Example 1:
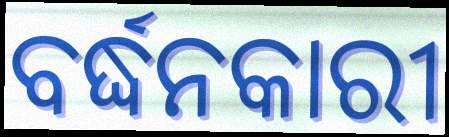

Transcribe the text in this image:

ବର୍ଦ୍ଧନକାରୀ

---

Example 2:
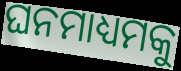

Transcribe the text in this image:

ଘନମାଧ୍ୟମକୁ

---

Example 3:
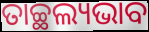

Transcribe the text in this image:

ତାଚ୍ଛଲ୍ୟଭାବ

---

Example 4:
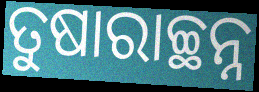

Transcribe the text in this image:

ତୁଷାରାଚ୍ଛନ୍ନ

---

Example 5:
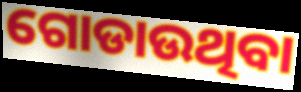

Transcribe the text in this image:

ଗୋଡାଉଥିବା